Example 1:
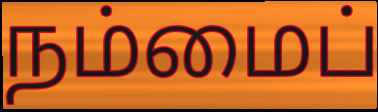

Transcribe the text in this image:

நம்மைப்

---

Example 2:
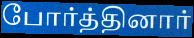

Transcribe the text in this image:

போர்த்தினார்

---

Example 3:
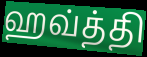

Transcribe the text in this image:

ஹவ்த்தி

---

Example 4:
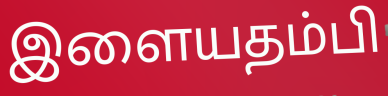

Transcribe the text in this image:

இளையதம்பி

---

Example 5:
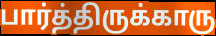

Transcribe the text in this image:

பார்த்திருக்காரு